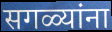
सगळ्यांना